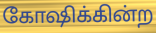
கோஷிக்கின்ற